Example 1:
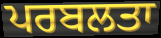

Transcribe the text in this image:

ਪਰਬਲਤਾ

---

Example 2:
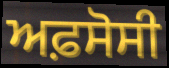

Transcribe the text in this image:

ਅਫ਼ਸੋਸੀ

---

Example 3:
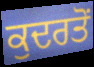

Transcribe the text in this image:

ਕੁਦਰਤੋਂ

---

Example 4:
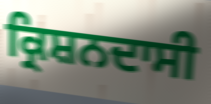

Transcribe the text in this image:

ਕ੍ਰਿਸ਼ਨਦਾਸੀ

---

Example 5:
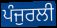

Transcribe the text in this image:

ਪੰਜੁਰਲੀ